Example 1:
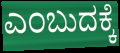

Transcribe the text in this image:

ಎಂಬುದಕ್ಕೆ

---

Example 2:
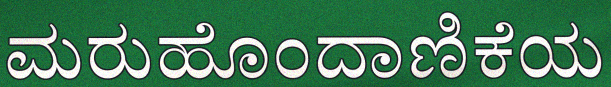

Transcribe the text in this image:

ಮರುಹೊಂದಾಣಿಕೆಯ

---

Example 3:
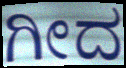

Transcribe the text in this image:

ಗೀದ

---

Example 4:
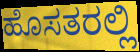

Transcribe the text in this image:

ಹೊಸತರಲ್ಲಿ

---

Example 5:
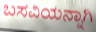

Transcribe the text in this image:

ಬಸವಿಯನ್ನಾಗಿ